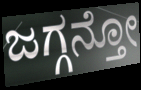
ಜಗ್ಗನ್ತೋ